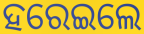
ହରେଇଲେ